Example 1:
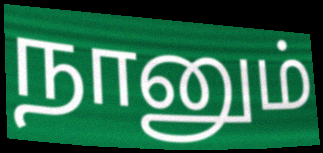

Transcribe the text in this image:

நானும்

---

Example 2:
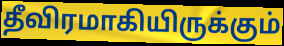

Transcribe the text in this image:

தீவிரமாகியிருக்கும்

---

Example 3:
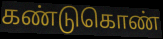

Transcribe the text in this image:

கண்டுகொண்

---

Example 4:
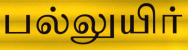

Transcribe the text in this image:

பல்லுயிர்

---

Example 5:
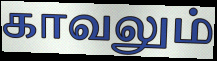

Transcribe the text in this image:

காவலும்